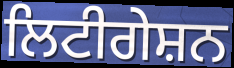
ਲਿਟੀਗੇਸ਼ਨ